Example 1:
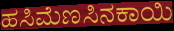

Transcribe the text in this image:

ಹಸಿಮೆಣಸಿನಕಾಯಿ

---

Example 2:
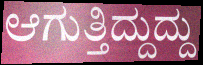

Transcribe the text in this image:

ಆಗುತ್ತಿದ್ದುದ್ದು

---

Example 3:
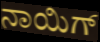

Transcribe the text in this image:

ನಾಯಿಗ್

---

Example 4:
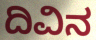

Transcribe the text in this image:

ದಿವಿನ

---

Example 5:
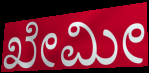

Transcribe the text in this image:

ಖೇಮೀ